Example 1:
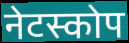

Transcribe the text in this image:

नेटस्कोप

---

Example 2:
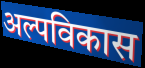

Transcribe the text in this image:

अल्पविकास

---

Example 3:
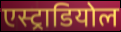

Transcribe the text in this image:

एस्ट्राडियोल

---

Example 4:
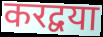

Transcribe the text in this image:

करद्वया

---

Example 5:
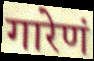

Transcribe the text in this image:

गारेणं